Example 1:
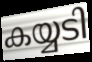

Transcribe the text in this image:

കയ്യടി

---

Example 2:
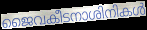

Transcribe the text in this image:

ജൈവകീടനാശിനികൾ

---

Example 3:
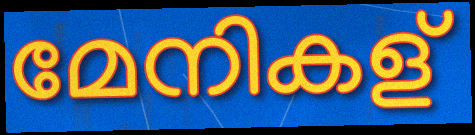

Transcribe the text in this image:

മേനികള്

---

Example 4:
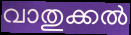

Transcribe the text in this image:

വാതുക്കൽ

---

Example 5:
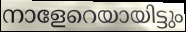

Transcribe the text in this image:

നാളേറെയായിട്ടും